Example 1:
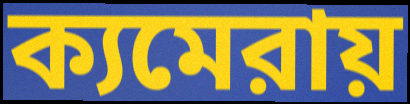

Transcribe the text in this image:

ক্যমেরায়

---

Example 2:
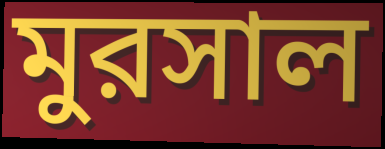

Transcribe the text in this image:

মুরসাল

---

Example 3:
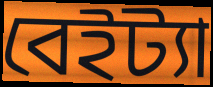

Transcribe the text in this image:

বেইট্যা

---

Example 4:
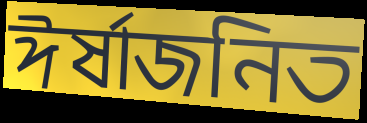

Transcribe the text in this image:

ঈর্ষাজনিত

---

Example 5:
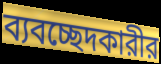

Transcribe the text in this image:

ব্যবচ্ছেদকারীর